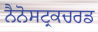
ਨੈਨੋਸਟ੍ਰਕਚਰਡ